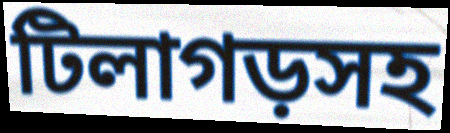
টিলাগড়সহ